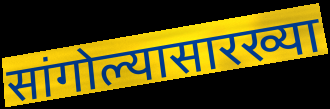
सांगोल्यासारख्या